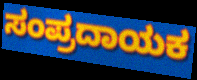
ಸಂಪ್ರದಾಯಕ